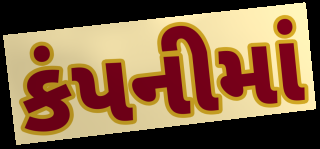
કંપનીમાં